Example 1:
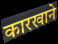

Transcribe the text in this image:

कारखाने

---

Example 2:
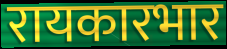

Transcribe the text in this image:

रायकारभार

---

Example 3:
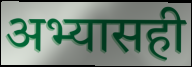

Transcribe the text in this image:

अभ्यासही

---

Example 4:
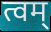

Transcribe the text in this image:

त्वम्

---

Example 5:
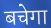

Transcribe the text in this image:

बचेगा